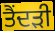
ਤੈਂਦੜੀ